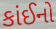
કાંઈનો